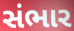
સંભાર